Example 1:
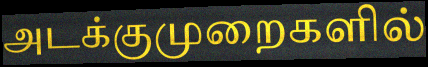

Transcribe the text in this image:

அடக்குமுறைகளில்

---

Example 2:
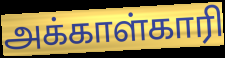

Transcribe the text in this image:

அக்காள்காரி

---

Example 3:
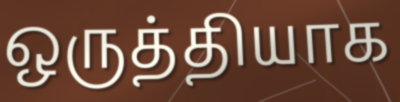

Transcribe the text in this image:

ஒருத்தியாக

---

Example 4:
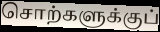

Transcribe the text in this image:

சொற்களுக்குப்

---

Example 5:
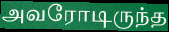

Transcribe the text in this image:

அவரோடிருந்த